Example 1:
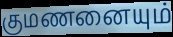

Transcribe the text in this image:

குமணனையும்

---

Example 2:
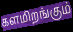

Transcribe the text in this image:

களமிறங்கும்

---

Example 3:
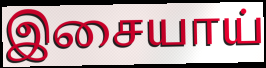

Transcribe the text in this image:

இசையாய்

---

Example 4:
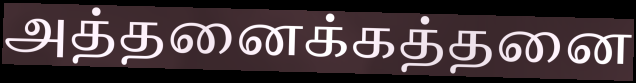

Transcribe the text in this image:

அத்தனைக்கத்தனை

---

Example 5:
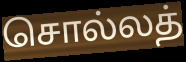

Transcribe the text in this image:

சொல்லத்